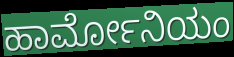
ಹಾರ್ಮೋನಿಯಂ